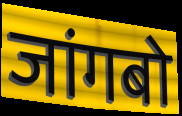
जांगबो